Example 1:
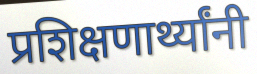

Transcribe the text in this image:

प्रशिक्षणार्थ्यांनी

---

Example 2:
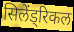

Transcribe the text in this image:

सिलेंड्रिकल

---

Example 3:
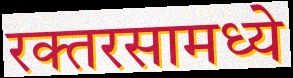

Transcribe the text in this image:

रक्तरसामध्ये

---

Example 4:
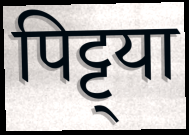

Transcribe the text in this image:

पिट्ट्या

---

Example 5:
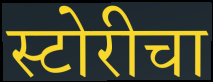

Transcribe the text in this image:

स्टोरीचा